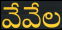
వేవేల